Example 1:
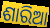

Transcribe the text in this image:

ଶାରିଆ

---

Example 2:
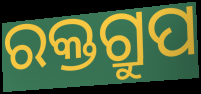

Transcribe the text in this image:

ରକ୍ତଗ୍ରୁପ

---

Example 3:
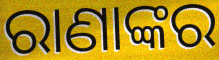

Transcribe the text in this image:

ରାଣାଙ୍କର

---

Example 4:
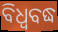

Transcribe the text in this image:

ବିଧ୍ଵବଦ୍ଧ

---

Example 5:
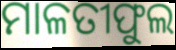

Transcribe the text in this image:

ମାଳତୀଫୁଲ